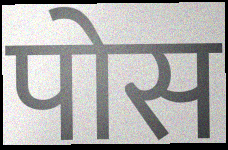
पोस